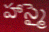
హాస్మై